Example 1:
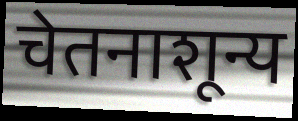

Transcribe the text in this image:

चेतनाशून्य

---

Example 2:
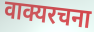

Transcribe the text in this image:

वाक्यरचना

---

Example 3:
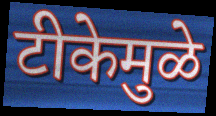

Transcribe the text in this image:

टीकेमुळे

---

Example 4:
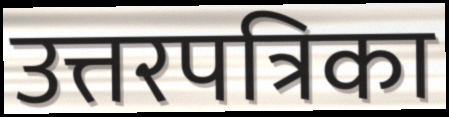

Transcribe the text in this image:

उत्तरपत्रिका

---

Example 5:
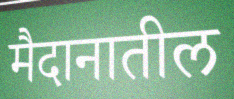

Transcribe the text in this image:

मैदानातील